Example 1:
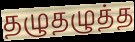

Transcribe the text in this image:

தழுதழுத்த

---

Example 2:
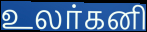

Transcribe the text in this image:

உலர்கனி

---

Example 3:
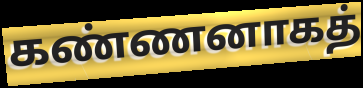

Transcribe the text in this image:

கண்ணனாகத்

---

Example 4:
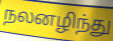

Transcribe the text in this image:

நலனழிந்து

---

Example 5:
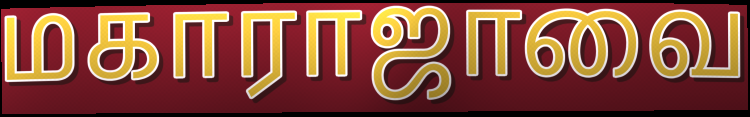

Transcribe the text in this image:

மகாராஜாவை